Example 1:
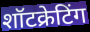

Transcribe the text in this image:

शॉटक्रेटिंग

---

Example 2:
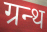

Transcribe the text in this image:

ग्रन्थ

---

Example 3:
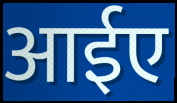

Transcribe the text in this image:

आईए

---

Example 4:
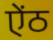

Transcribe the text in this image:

ऐंठ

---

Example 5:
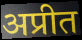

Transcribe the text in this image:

अप्रीत